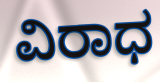
ವಿರಾಧ